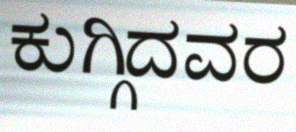
ಕುಗ್ಗಿದವರ